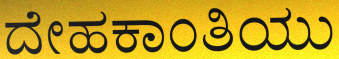
ದೇಹಕಾಂತಿಯು